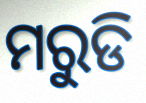
ମରୁଡି